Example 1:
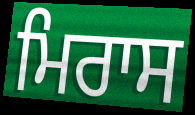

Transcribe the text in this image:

ਮਿਰਾਸ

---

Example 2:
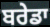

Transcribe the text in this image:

ਬਰੇਡਾ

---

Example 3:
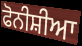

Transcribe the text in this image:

ਫੋਨੀਸ਼ੀਆ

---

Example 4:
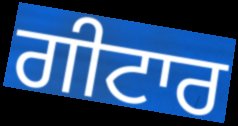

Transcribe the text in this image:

ਗੀਟਾਰ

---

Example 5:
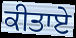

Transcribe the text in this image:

ਕੀਤਾਏ